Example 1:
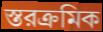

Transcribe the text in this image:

স্তরক্রমিক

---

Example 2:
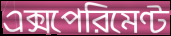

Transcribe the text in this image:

এক্সপেরিমেণ্ট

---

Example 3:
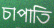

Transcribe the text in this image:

চাপাতি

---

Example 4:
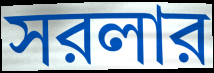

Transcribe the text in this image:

সরলার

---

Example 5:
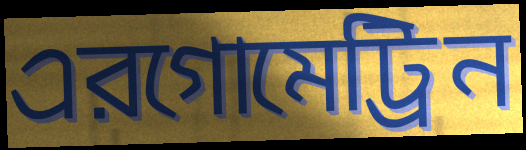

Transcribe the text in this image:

এরগোমেট্রিন